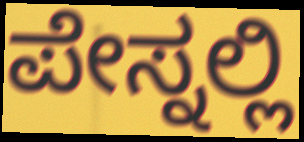
ಪೇಸ್ನಲ್ಲಿ